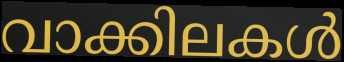
വാക്കിലകൾ